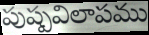
పుష్పవిలాపము